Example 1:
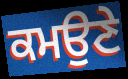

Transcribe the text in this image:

ਕਮਉਣੇ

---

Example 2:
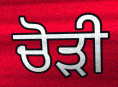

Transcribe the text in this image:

ਚੋੜੀ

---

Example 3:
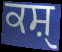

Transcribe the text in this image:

ਕਸ਼ੑ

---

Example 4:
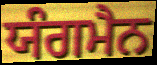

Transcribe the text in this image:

ਯੰਗਮੈਨ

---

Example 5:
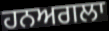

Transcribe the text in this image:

ਹਨਅਗਲਾ